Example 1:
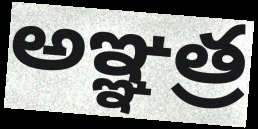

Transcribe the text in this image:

అఞ్ఞత్ర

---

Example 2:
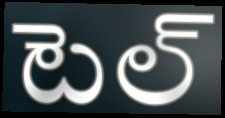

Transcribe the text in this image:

టెల్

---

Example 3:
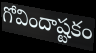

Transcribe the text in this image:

గోవిందాష్టకం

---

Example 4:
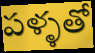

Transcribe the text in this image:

పళ్ళతో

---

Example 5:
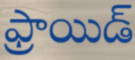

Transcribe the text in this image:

ఫ్రాయిడ్